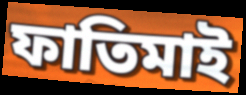
ফাতিমাই